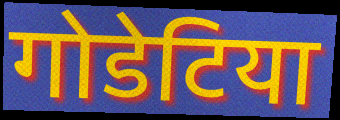
गोडेटिया